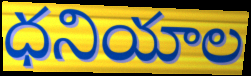
ధనియాల